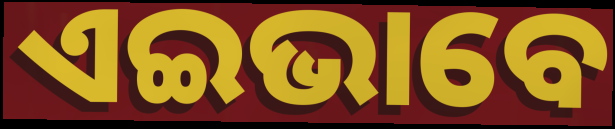
ଏଇଭାବେ